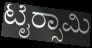
ಟೈರ‍್ಸಾಮಿ